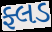
ફ્લડ